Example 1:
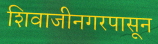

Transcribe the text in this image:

शिवाजीनगरपासून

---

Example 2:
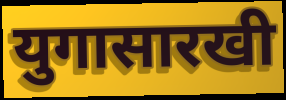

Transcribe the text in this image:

युगासारखी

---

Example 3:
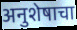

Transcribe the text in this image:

अनुशेषाचा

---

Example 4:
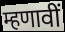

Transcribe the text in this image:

म्हणावीं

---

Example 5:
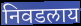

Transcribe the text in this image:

निवडलाय